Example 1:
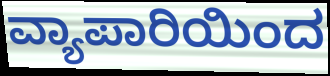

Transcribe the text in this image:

ವ್ಯಾಪಾರಿಯಿಂದ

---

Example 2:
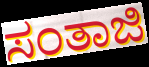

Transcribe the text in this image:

ಸಂತಾಜಿ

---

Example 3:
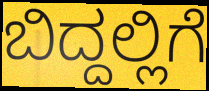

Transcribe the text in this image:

ಬಿದ್ದಲ್ಲಿಗೆ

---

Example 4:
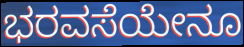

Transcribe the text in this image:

ಭರವಸೆಯೇನೂ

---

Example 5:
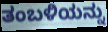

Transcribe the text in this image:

ತಂಬಳಿಯನ್ನು